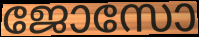
ജോസോ